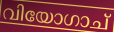
വിയോഗാച്